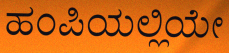
ಹಂಪಿಯಲ್ಲಿಯೇ